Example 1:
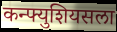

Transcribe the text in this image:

कन्फ्युशियसला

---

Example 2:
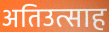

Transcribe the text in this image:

अतिउत्साह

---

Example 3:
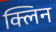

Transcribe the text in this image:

क्लिन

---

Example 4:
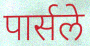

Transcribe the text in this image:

पार्सले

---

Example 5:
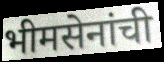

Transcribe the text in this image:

भीमसेनांची